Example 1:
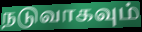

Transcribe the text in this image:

நடுவாகவும்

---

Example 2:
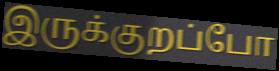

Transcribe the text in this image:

இருக்குறப்போ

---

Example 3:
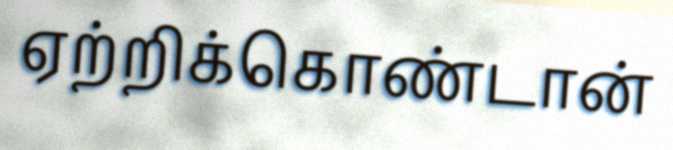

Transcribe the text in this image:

ஏற்றிக்கொண்டான்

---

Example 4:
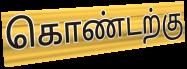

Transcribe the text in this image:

கொண்டற்கு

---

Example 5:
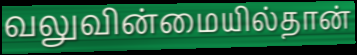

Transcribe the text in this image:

வலுவின்மையில்தான்